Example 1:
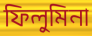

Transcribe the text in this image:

ফিলুমিনা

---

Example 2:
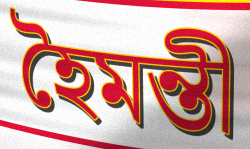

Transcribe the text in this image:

হৈমন্তী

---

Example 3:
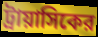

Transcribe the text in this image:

ট্রায়াসিকের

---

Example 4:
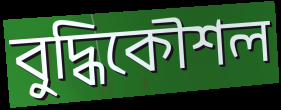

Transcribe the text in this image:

বুদ্ধিকৌশল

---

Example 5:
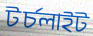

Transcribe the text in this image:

টর্চলাইট